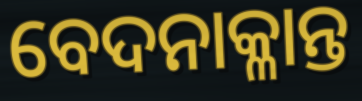
ବେଦନାକ୍ଳାନ୍ତ